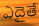
ఎదైతే